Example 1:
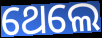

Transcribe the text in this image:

ଥେଲେ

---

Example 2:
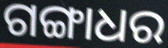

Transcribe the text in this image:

ଗଙ୍ଗାଧର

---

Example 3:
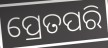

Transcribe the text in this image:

ପ୍ରେତପରି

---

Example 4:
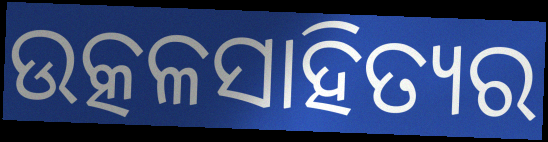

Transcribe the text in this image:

ଉତ୍କଳସାହିତ୍ୟର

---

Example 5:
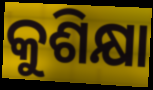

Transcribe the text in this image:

କୁଶିକ୍ଷା